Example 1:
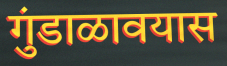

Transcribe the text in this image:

गुंडाळावयास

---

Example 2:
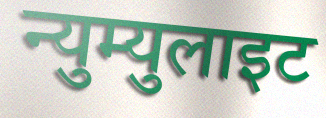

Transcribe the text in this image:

न्युम्युलाइट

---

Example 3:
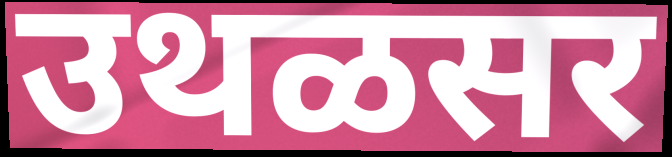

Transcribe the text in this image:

उथळसर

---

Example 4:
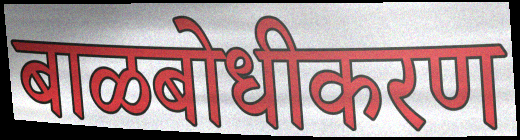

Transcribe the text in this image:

बाळबोधीकरण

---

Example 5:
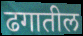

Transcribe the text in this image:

ढगातील